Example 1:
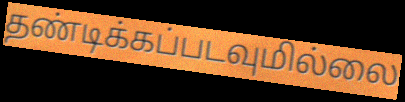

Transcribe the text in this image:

தண்டிக்கப்படவுமில்லை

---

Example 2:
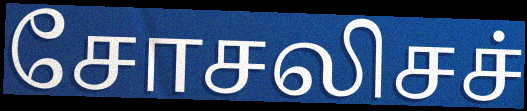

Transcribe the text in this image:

சோசலிசச்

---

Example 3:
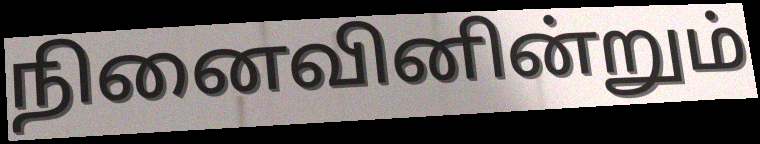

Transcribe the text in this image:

நினைவினின்றும்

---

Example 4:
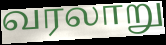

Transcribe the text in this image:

வரலாறு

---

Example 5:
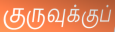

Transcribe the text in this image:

குருவுக்குப்